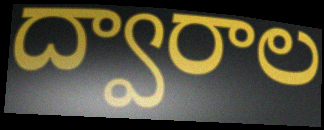
ద్వారాల